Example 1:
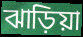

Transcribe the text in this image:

ঝাড়িয়া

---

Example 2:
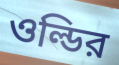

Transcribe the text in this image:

ওল্ডির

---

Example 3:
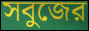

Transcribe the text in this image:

সবুজের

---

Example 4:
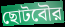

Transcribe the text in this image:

ছোটবৌর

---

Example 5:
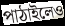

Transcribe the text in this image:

পাঠাইলেও